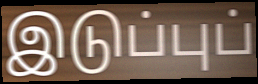
இடுப்புப்